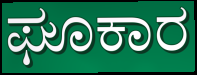
ಘೂಕಾರ